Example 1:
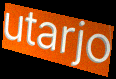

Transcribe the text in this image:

utarjo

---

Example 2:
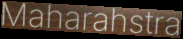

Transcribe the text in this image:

Maharahstra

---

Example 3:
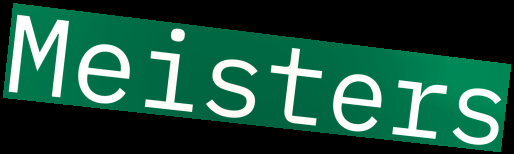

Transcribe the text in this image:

Meisters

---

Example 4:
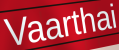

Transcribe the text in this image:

Vaarthai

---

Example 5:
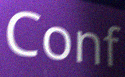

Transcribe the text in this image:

Conf